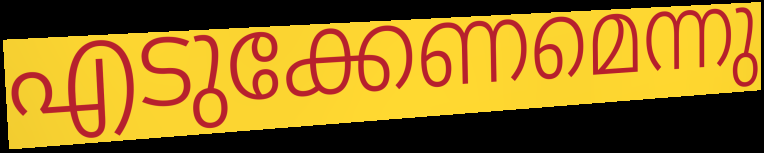
എടുക്കേണമെന്നു